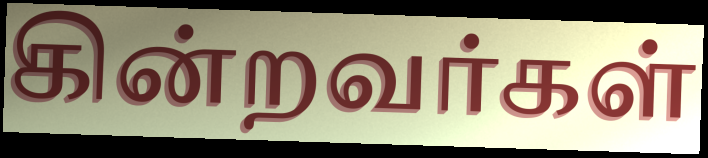
கின்றவர்கள்